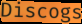
Discogs